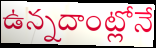
ఉన్నదాంట్లోనే